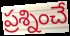
ప్రశ్నించే